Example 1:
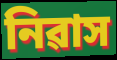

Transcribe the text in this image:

নিৱাস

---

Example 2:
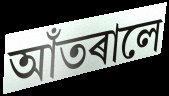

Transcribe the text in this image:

আঁতৰালে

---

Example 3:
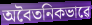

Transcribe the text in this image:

অবৈতনিকভাৱে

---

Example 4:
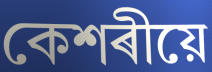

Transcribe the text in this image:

কেশৰীয়ে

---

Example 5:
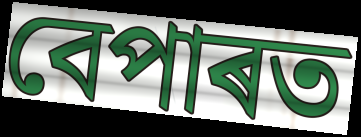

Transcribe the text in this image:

বেপাৰত